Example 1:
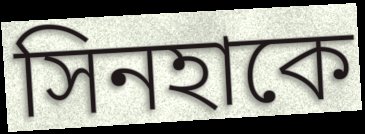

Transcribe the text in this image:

সিনহাকে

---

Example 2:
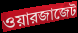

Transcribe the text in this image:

ওয়ারজাজেট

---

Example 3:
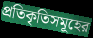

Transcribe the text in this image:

প্রতিকৃতিসমূহের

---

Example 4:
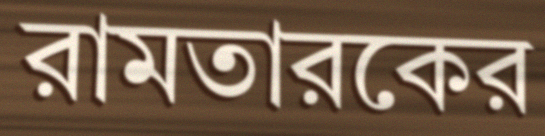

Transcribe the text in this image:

রামতারকের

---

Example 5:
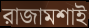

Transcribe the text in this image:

রাজামশাই